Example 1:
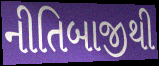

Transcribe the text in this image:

નીતિબાજીથી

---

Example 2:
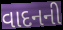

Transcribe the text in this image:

વાદનની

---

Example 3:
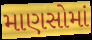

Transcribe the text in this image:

માણસોમાં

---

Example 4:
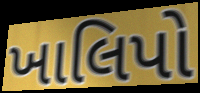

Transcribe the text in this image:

ખાલિપો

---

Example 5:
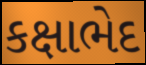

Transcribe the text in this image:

કક્ષાભેદ